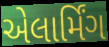
એલાર્મિંગ